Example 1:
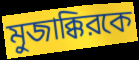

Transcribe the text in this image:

মুজাক্কিরকে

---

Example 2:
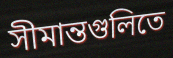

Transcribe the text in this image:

সীমান্তগুলিতে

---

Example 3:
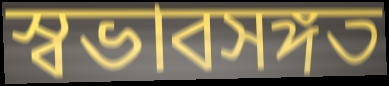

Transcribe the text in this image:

স্বভাবসঙ্গত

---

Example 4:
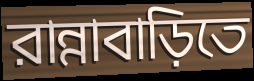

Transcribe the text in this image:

রান্নাবাড়িতে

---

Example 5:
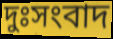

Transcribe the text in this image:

দুঃসংবাদ